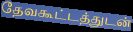
தேவகூட்டத்துடன்